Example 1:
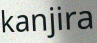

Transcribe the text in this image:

kanjira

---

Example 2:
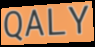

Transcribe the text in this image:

QALY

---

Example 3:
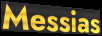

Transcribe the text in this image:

Messias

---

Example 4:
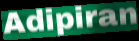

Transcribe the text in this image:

Adipiran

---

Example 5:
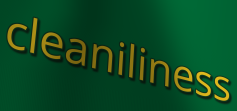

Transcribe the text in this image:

cleaniliness